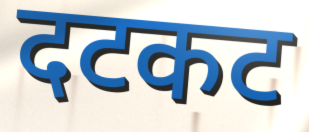
दटकट